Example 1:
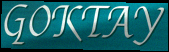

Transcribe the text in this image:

GOKTAY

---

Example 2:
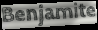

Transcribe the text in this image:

Benjamite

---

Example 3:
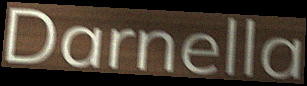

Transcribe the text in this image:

Darnella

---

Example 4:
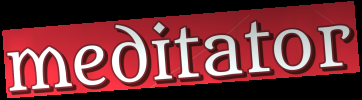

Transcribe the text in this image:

meditator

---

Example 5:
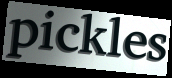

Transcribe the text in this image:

pickles